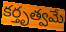
కర్తృత్వమే